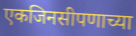
एकजिनसीपणाच्या